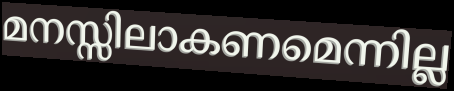
മനസ്സിലാകണമെന്നില്ല